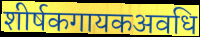
शीर्षकगायकअवधि